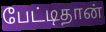
பேட்டிதான்